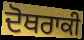
ਦੋਥਰਾਕੀ